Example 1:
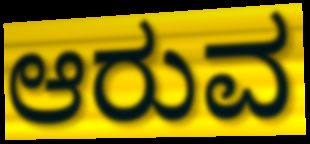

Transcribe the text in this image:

ಆರುವ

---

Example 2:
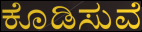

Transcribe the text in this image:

ಕೊಡಿಸುವೆ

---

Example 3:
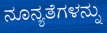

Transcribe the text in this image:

ನೂನ್ಯತೆಗಳನ್ನು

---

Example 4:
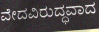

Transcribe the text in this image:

ವೇದವಿರುದ್ಧವಾದ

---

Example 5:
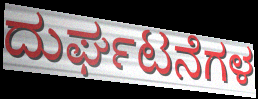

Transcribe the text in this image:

ದುರ್ಘಟನೆಗಳ